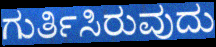
ಗುರ್ತಿಸಿರುವುದು